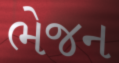
ભેજન